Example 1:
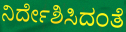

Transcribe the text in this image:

ನಿರ್ದೇಶಿಸಿದಂತೆ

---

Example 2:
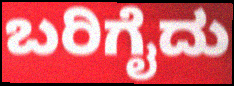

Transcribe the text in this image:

ಬರಿಗೈದು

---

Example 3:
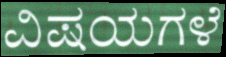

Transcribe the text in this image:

ವಿಷಯಗಳೆ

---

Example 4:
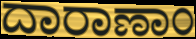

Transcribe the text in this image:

ದಾರಾಣಾಂ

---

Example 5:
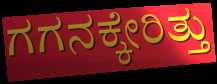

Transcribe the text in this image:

ಗಗನಕ್ಕೇರಿತ್ತು